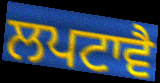
ਲਪਟਾਵੈ